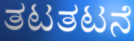
ತಟತಟನೆ